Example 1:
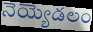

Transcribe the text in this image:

నెయ్యెడలం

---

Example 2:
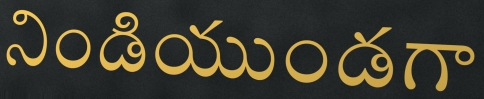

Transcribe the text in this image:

నిండియుండగా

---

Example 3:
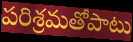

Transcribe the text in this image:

పరిశ్రమతోపాటు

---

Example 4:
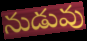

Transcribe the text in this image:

నుడువు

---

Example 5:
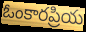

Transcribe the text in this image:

ఓంకారప్రియ